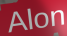
Alon